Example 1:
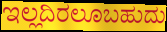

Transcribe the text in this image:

ಇಲ್ಲದಿರಲೂಬಹುದು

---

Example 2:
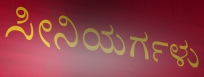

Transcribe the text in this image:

ಸೀನಿಯರ್ಗಳು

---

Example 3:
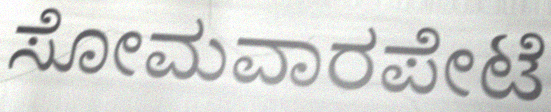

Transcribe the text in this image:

ಸೋಮವಾರಪೇಟೆ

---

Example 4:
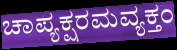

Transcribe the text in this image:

ಚಾಪ್ಯಕ್ಷರಮವ್ಯಕ್ತಂ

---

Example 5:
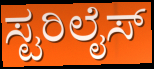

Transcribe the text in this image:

ಸ್ಟರಿಲೈಸ್